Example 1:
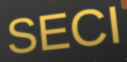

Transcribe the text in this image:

SECI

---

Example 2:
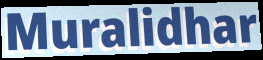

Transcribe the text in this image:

Muralidhar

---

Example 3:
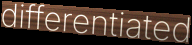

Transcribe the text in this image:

differentiated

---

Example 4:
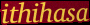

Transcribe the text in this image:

ithihasa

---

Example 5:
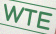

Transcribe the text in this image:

WTE